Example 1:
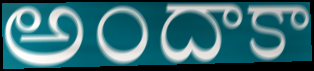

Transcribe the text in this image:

అందాకా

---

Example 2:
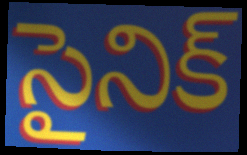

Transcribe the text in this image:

సైనిక్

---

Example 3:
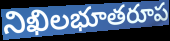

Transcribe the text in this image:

నిఖిలభూతరూప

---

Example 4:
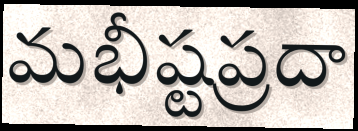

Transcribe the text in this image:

మభీష్టప్రదా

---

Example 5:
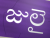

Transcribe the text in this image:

జులై